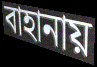
বাহানায়